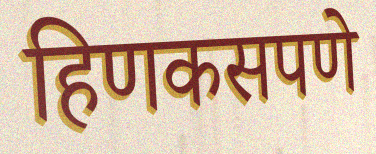
हिणकसपणे